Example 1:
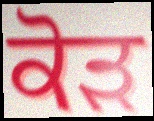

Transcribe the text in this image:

ਕੋੜ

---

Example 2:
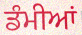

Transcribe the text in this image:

ਡੰਮੀਆਂ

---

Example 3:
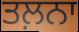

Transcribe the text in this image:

ਤਲ਼ਨਾ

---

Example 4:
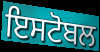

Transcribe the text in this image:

ਇਸਟੋਬਲ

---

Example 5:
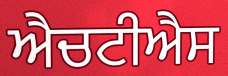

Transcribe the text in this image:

ਐਚਟੀਐਸ